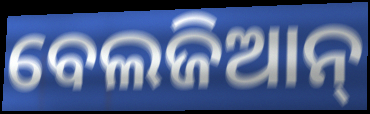
ବେଲଜିଆନ୍